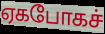
ஏகபோகச்